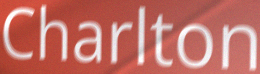
Charlton